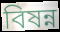
বিষন্ন